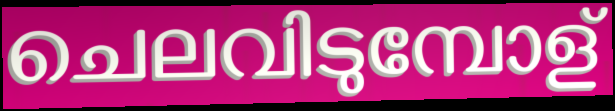
ചെലവിടുമ്പോള്